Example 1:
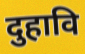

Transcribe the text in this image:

दुहावि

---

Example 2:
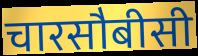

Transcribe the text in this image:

चारसौबीसी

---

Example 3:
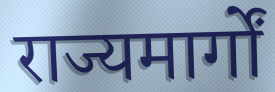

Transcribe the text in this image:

राज्यमार्गों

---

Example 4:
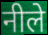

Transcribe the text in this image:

नीले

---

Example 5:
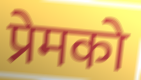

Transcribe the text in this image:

प्रेमको